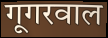
गूगरवाल